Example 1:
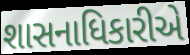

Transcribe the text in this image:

શાસનાધિકારીએ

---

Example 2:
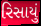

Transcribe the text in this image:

રિસાયું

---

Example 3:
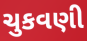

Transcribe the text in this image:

ચુકવણી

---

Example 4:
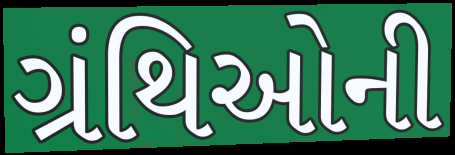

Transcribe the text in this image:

ગ્રંથિઓની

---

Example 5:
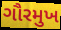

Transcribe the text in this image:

ગૌરમુખ